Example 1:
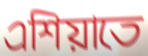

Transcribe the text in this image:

এশিয়াতে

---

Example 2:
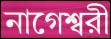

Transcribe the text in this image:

নাগেশ্বরী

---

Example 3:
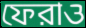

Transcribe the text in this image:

ফেরাও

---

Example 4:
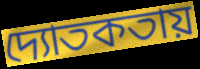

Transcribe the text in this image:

দ্যোতকতায়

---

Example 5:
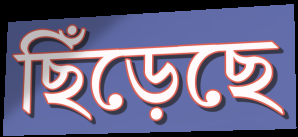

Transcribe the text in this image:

ছিঁড়েছে